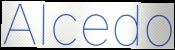
Alcedo